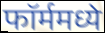
फॉर्ममध्ये